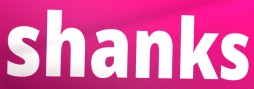
shanks